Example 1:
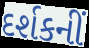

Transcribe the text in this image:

દર્શકનીં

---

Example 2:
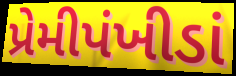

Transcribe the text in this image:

પ્રેમીપંખીડાં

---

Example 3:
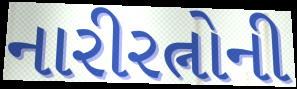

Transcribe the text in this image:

નારીરત્નોની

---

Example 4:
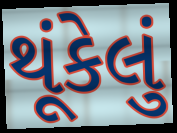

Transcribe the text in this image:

થૂંકેલું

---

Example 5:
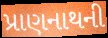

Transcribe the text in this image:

પ્રાણનાથની